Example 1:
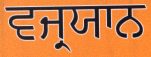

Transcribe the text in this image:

ਵਜ੍ਰਯਾਨ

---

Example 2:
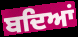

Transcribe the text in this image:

ਬਦਿਆਂ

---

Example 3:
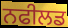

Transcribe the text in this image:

ਨਫੀਲਡ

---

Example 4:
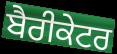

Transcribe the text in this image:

ਬੈਰੀਕੇਟਰ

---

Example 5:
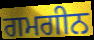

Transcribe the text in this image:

ਗਮਗੀਨ